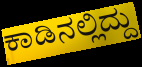
ಕಾಡಿನಲ್ಲಿದ್ದು